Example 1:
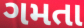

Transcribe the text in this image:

ગમતા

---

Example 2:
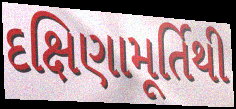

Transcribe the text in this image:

દક્ષિણામૂર્તિથી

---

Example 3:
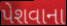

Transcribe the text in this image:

પેશવાના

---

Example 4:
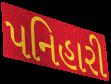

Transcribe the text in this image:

પનિહારી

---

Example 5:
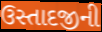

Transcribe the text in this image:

ઉસ્તાદજીની